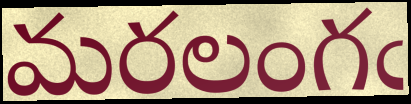
మరలంగఁ